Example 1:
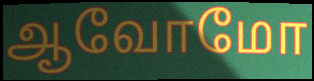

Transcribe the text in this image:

ஆவோமோ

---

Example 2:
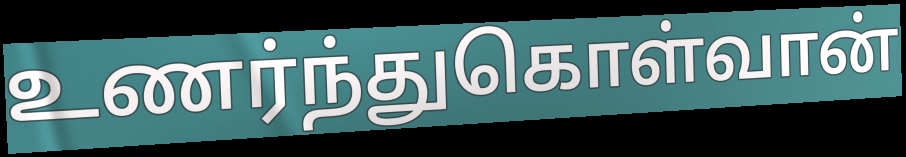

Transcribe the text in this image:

உணர்ந்துகொள்வான்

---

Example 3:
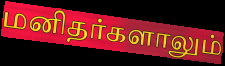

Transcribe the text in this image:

மனிதர்களாலும்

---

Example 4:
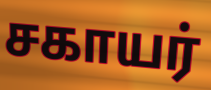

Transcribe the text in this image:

சகாயர்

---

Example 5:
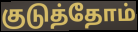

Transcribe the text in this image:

குடுத்தோம்